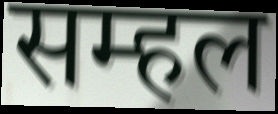
सम्हल